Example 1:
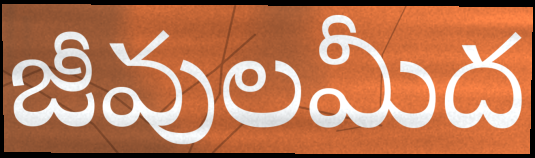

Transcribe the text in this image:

జీవులమీద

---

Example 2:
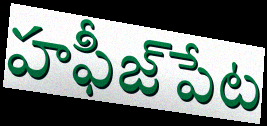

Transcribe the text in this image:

హఫీజ్‌పేట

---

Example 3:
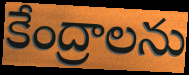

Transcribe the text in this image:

కేంద్రాలను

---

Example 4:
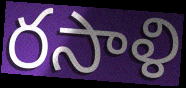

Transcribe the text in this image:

రసాళి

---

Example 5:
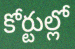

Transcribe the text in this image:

కోర్టుల్లో